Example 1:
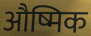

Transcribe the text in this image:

औष्मिक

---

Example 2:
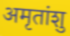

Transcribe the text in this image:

अमृतांशु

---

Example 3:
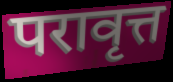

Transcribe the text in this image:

परावृत्त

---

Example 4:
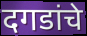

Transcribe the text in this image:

दगडांचे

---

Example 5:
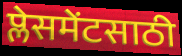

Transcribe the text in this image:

प्लेसमेंटसाठी